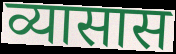
व्यासास